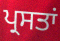
ਪ੍ਰਸਤਾਂ